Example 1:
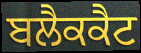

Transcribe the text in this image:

ਬਲੈਕਕੈਟ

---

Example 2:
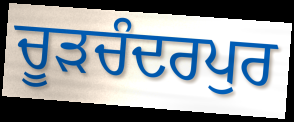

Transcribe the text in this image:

ਚੂੜਚੰਦਰਪੁਰ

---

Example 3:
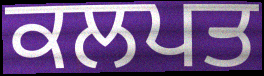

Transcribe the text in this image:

ਕਲਪਤ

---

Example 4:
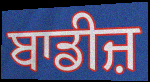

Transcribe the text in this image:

ਬਾਡੀਜ਼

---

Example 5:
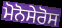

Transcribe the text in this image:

ਮੋਨੋਸੇਰੋਸ